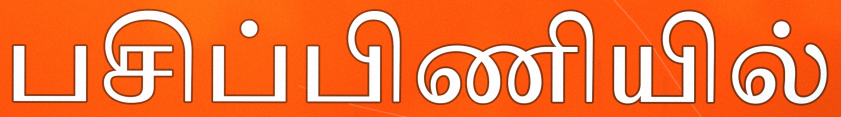
பசிப்பிணியில்